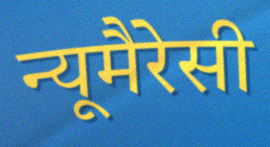
न्यूमैरेसी